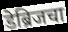
डेब्रिजचा